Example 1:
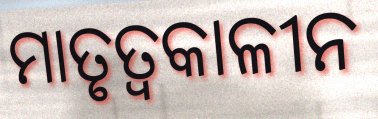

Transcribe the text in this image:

ମାତୃତ୍ୱକାଳୀନ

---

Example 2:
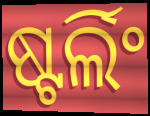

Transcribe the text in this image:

ଷ୍ଟର୍ଲିଂ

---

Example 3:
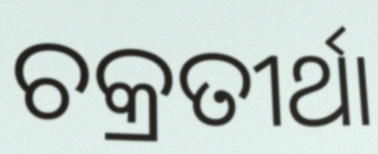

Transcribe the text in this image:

ଚକ୍ରତୀର୍ଥା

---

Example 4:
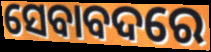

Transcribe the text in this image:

ସେବାବଦରେ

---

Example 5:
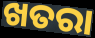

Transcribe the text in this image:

ଖତରା